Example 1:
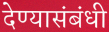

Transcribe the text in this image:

देण्यासंबंधी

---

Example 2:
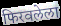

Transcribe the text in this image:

फिरवलेला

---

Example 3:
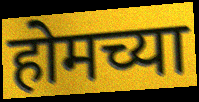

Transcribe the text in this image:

होमच्या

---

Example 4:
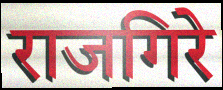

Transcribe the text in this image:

राजगिरे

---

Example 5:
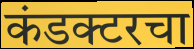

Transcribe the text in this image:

कंडक्टरचा